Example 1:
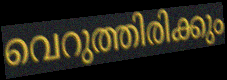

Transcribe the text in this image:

വെറുത്തിരിക്കും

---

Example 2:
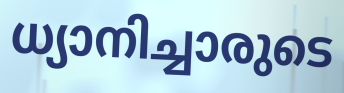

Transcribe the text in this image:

ധ്യാനിച്ചാരുടെ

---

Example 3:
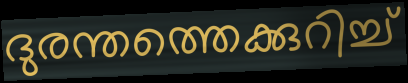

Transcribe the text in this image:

ദുരന്തത്തെക്കുറിച്ച്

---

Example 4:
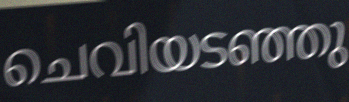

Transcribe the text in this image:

ചെവിയടഞ്ഞു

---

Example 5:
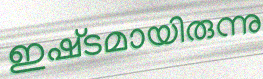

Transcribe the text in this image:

ഇഷ്‌ടമായിരുന്നു